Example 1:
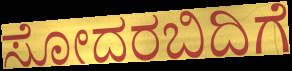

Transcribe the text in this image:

ಸೋದರಬಿದಿಗೆ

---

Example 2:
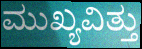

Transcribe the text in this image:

ಮುಖ್ಯವಿತ್ತು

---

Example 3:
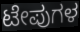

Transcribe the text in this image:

ಟೇಪುಗಳ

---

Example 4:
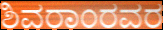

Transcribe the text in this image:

ಶಿವರಾಂರವರ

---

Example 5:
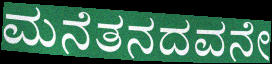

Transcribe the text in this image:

ಮನೆತನದವನೇ